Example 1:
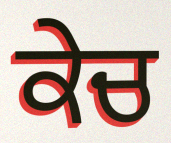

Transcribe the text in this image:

ਕੇਚ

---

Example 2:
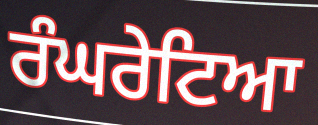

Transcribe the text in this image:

ਰੰਘਰੇਟਿਆ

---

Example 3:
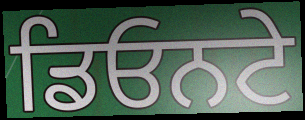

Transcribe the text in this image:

ਡਿਓਨਟੇ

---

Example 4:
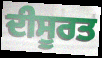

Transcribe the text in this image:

ਦੀਸੂਰਤ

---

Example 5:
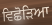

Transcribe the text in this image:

ਵਿਛੋੜਿਆ